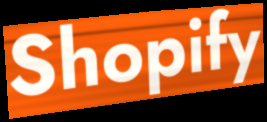
Shopify